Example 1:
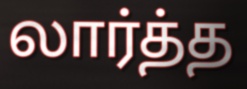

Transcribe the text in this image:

லார்த்த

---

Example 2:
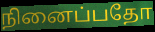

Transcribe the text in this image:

நினைப்பதோ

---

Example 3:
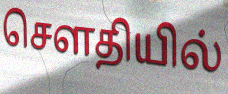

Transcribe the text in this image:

செளதியில்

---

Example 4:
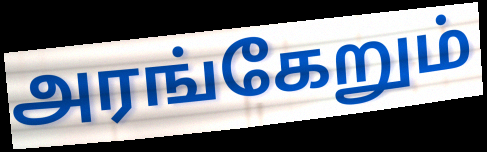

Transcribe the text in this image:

அரங்கேறும்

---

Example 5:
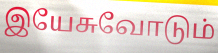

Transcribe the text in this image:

இயேசுவோடும்